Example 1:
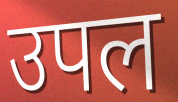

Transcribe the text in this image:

उपल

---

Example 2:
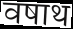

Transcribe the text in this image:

वषाथ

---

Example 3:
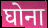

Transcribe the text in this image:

घोना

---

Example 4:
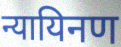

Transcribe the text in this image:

न्यायिनण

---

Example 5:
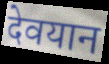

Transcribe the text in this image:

देवयान